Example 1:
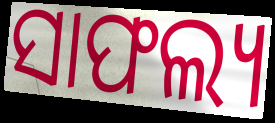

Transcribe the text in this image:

ସାଫଲ୍ଯ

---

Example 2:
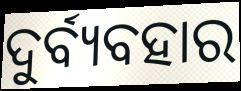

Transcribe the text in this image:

ଦୁର୍ବ୍ୟବହାର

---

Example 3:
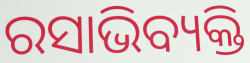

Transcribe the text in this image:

ରସାଭିବ୍ୟକ୍ତି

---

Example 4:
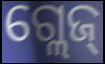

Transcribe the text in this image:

ଗ୍ଲେଜ୍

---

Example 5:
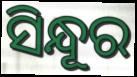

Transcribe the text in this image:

ସିନ୍ଧୂର